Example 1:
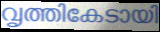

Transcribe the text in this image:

വൃത്തികേടായി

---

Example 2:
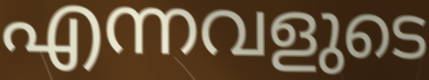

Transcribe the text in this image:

എന്നവളുടെ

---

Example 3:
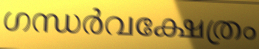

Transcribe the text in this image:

ഗന്ധർവക്ഷേത്രം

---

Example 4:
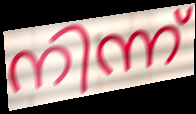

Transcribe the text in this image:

നിന്ന്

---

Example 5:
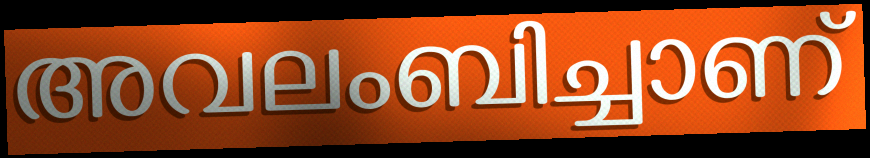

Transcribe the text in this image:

അവലംബിച്ചാണ്